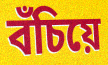
বঁচিয়ে